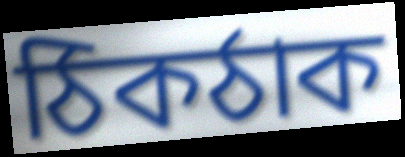
ঠিকঠাক